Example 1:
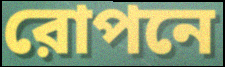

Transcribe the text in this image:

রোপনে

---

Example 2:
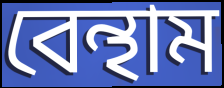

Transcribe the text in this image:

বেন্থাম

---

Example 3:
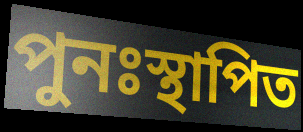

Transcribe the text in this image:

পুনঃস্থাপিত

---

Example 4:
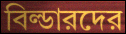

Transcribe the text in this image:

বিল্ডারদের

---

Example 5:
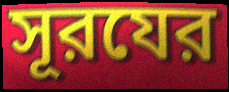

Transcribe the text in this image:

সূরযের